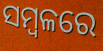
ସମ୍ବଳରେ